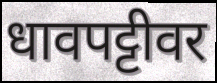
धावपट्टीवर